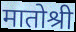
मातोश्री